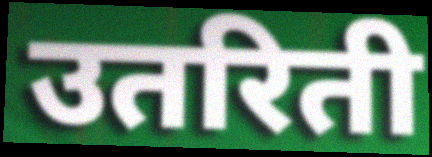
उतरिती